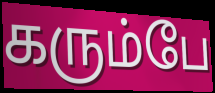
கரும்பே